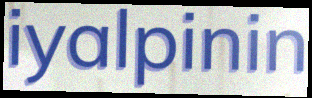
iyalpinin